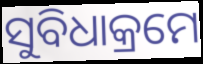
ସୁବିଧାକ୍ରମେ